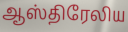
ஆஸ்திரேலிய